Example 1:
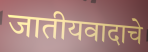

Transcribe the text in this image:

जातीयवादाचे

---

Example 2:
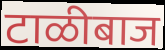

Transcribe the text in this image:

टाळीबाज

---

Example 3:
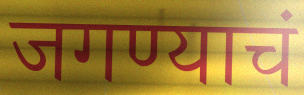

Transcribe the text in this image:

जगण्याचं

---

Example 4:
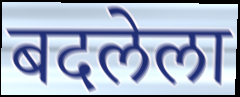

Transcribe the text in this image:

बदलेला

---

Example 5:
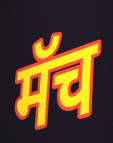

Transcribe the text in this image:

मॅच